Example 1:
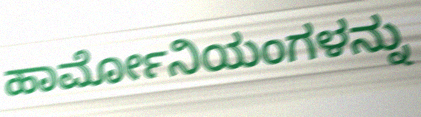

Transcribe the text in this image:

ಹಾರ್ಮೋನಿಯಂಗಳನ್ನು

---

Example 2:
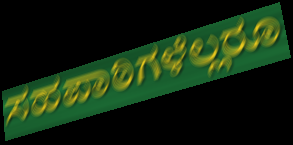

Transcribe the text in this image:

ಸಹಪಾಠಿಗಳೆಲ್ಲರೂ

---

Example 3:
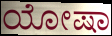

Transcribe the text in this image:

ಯೋಷಾ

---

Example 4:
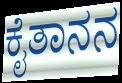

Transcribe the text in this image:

ಕೈತಾನನ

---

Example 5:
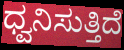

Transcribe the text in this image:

ಧ್ವನಿಸುತ್ತಿದೆ